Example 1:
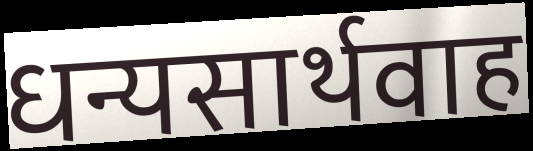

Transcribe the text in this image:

धन्यसार्थवाह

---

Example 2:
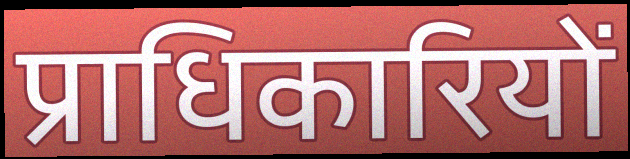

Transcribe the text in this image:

प्राधिकारियों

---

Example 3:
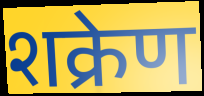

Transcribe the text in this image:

शक्रेण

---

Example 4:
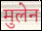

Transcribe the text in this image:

मुलेन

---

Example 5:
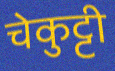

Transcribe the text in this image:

चेकुट्टी